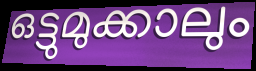
ഒട്ടുമുക്കാലും